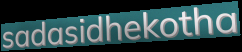
sadasidhekotha